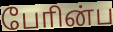
பேரின்ப